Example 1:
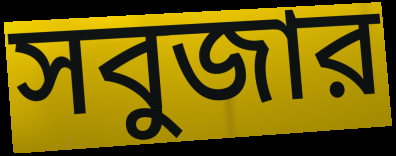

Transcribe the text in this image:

সবুজার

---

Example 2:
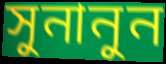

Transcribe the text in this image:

সুনানুন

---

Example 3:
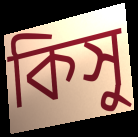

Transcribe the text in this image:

কিসু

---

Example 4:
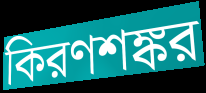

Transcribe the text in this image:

কিরণশঙ্কর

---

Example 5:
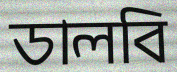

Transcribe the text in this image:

ডালবি